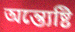
অন্ত্যেষ্টি